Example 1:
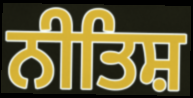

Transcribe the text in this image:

ਨੀਤਿਸ਼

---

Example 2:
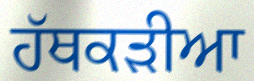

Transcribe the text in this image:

ਹੱਥਕੜੀਆ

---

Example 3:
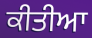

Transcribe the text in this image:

ਕੀਤੀਆ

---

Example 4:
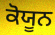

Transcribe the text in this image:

ਕੋਯੂਨ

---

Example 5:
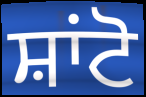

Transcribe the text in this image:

ਸ਼ਾਂਟੋ